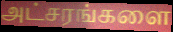
அட்சரங்களை